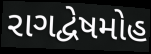
રાગદ્વેષમોહ